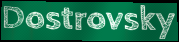
Dostrovsky